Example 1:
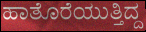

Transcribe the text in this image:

ಹಾತೊರೆಯುತ್ತಿದ್ದ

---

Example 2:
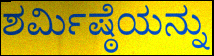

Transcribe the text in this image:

ಶರ್ಮಿಷ್ಠೆಯನ್ನು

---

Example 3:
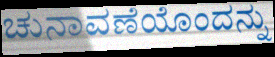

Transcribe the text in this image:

ಚುನಾವಣೆಯೊಂದನ್ನು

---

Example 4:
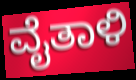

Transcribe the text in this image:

ವೈತಾಳಿ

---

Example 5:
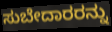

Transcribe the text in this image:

ಸುಬೇದಾರರನ್ನು